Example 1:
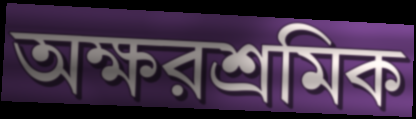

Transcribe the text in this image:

অক্ষরশ্রমিক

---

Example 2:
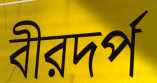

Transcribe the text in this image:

বীরদর্প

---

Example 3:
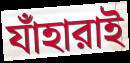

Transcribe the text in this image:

যাঁহারাই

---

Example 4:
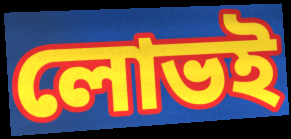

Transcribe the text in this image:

লোভই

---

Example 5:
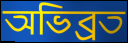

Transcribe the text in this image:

অভিব্রত